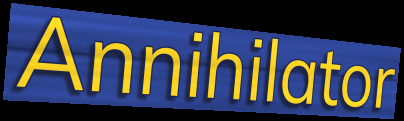
Annihilator